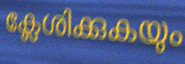
ക്ലേശിക്കുകയും